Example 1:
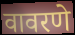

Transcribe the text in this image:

वावरणे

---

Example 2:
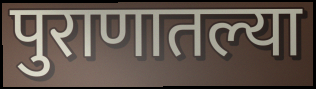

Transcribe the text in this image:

पुराणातल्या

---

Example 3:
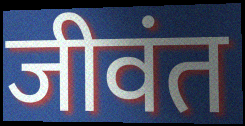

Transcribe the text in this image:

जीवंत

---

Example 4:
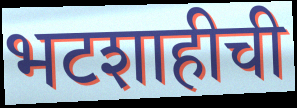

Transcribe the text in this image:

भटशाहीची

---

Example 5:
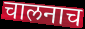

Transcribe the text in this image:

चालनाच